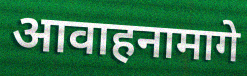
आवाहनामागे